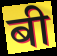
बी